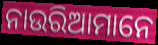
ନାଉରିଆମାନେ